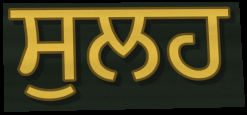
ਸੁਲਹ